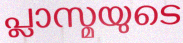
പ്ലാസ്മയുടെ